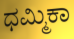
ಧಮ್ಮಿಕಾ